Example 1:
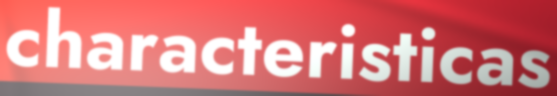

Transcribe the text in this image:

characteristicas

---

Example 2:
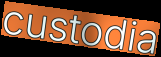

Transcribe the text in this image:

custodia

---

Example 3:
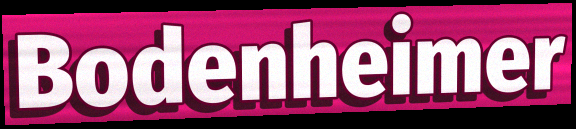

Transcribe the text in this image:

Bodenheimer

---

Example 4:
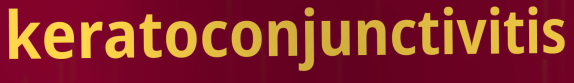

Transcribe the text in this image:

keratoconjunctivitis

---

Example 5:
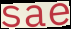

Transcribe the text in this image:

sae